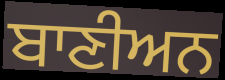
ਬਾਣੀਅਨ